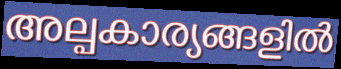
അല്പകാര്യങ്ങളിൽ